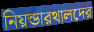
নিয়ন্ডারথালদের